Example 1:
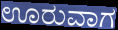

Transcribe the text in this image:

ಊರುವಾಗ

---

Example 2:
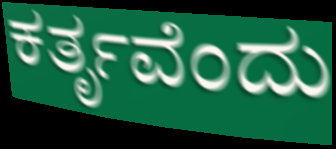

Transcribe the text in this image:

ಕರ್ತೃವೆಂದು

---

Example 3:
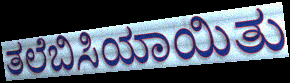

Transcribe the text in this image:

ತಲೆಬಿಸಿಯಾಯಿತು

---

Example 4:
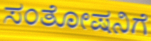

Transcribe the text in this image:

ಸಂತೋಷನಿಗೆ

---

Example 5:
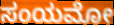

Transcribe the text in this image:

ಸಂಯಮೋ